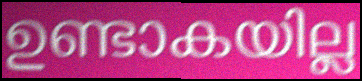
ഉണ്ടാകയില്ല